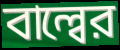
বাল্বের